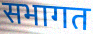
सभागत